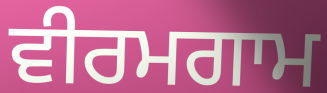
ਵੀਰਮਗਾਮ